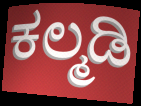
ಕಲ್ಮಡಿ